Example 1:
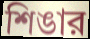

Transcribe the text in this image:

শিঙার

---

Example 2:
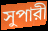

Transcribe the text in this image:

সুপারী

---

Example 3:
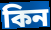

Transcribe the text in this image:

কিন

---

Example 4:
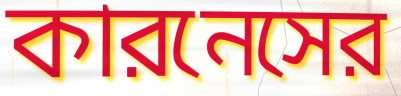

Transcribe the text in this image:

কারনেসের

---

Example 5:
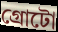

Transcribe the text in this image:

গ্রোটো